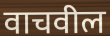
वाचवील